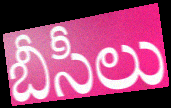
బీసీలు